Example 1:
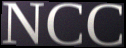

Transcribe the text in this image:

NCC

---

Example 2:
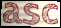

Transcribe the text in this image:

asc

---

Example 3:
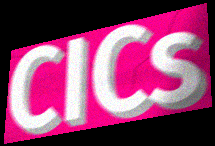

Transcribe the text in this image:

CICs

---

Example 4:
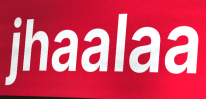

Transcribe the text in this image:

jhaalaa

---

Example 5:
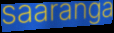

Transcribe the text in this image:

saaranga